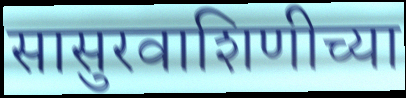
सासुरवाशिणीच्या